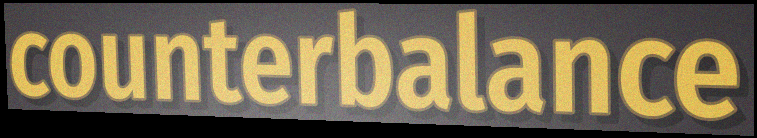
counterbalance